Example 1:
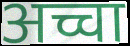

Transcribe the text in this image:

अच्चा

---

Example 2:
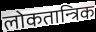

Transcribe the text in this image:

लोकतान्त्रिक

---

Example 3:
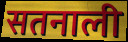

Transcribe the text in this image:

सतनाली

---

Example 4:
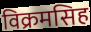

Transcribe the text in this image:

विक्रमसिह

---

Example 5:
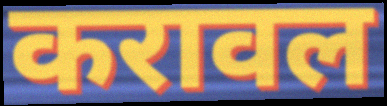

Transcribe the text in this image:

करावल